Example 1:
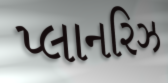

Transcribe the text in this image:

પ્લાનરિઝ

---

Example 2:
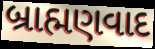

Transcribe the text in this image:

બ્રાહ્મણવાદ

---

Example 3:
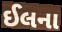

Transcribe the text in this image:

ઈલના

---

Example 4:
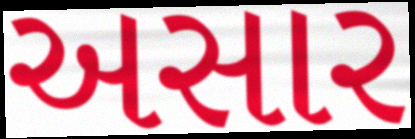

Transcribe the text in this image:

અસાર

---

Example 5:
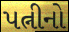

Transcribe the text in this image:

પત્નીનો